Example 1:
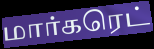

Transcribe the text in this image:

மார்கரெட்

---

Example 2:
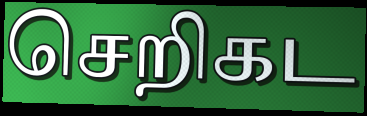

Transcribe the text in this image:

செறிகட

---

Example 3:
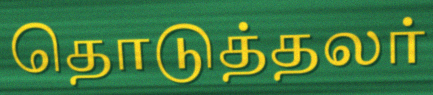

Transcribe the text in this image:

தொடுத்தலர்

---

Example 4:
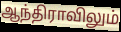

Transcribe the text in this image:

ஆந்திராவிலும்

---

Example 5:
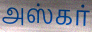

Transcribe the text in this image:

அஸ்கர்